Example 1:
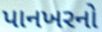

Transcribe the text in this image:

પાનખરનો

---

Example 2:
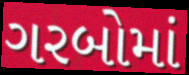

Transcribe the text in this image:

ગરબોમાં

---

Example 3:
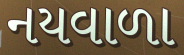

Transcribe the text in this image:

નયવાળા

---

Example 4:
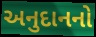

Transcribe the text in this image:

અનુદાનનો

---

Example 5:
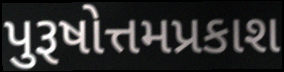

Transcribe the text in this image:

પુરૂષોત્તમપ્રકાશ